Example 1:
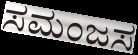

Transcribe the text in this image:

ಸಮಂಜಸ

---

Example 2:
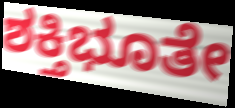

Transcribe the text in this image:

ಶಕ್ತಿಭೂತೇ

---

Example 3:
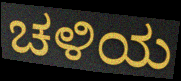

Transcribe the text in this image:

ಚಳಿಯ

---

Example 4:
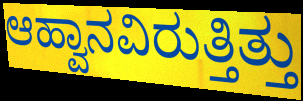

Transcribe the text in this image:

ಆಹ್ವಾನವಿರುತ್ತಿತ್ತು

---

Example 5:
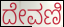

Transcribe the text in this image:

ದೇವಣಿ